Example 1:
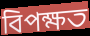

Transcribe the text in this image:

বিপক্ষত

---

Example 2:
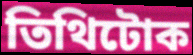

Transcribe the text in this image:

তিথিটোক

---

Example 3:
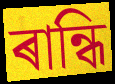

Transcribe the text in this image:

ৰান্ধি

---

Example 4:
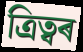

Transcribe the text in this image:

ত্ৰিত্বৰ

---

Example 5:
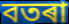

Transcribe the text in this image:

বতৰা